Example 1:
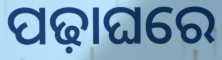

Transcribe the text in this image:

ପଢ଼ାଘରେ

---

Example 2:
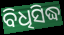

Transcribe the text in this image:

ବିଧିସିଦ୍ଧ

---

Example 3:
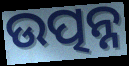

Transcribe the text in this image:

ଉତ୍ପନ୍ନ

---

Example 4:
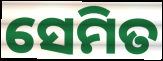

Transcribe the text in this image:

ସେମିତ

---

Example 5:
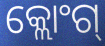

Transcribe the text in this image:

କ୍ଲୋଂଗ୍